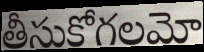
తీసుకోగలమో